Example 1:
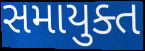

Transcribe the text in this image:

સમાયુક્ત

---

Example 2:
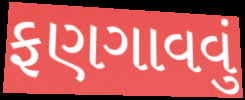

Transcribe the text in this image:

ફણગાવવું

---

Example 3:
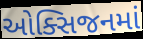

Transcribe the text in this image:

ઓક્સિજનમાં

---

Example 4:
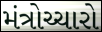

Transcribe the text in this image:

મંત્રોચ્ચારો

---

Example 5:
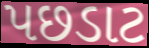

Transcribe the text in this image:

પછડાટ